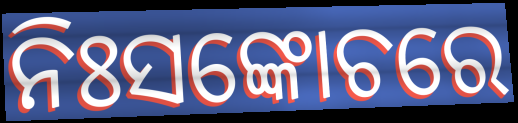
ନିଃସଙ୍କୋଚରେ